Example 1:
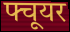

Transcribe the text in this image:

फ्चूयर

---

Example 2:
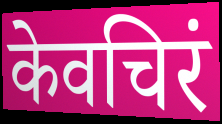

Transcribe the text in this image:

केवचिरं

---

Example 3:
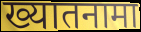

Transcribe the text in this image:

ख्यातनामा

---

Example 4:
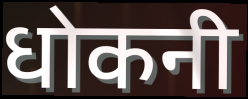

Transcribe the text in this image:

धोकनी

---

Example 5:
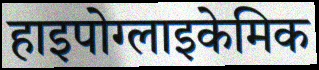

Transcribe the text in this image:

हाइपोग्लाइकेमिक